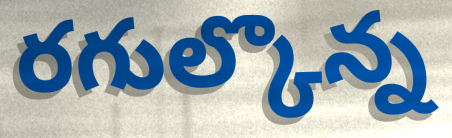
రగుల్కొన్న